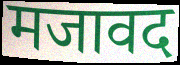
मजावद